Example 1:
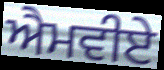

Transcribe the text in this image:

ਐਮਵੀਏ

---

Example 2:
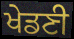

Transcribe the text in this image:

ਖੇਡਣੀ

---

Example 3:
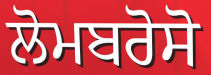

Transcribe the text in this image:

ਲੋਮਬਰੋਸੋ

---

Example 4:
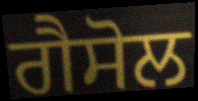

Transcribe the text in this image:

ਗੈਸੋਲ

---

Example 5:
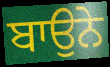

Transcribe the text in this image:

ਬਾਉਨੇ